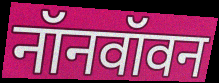
नॉनवॉवन